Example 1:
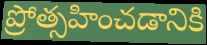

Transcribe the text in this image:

ప్రోత్సహించడానికి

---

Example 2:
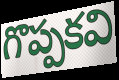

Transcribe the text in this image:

గొప్పకవి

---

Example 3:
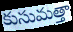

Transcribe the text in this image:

కుసుమత్తా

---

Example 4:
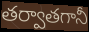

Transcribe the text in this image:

తర్వాతగానీ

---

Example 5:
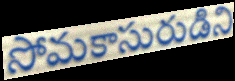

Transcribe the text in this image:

సోమకాసురుడిని